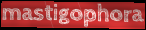
mastigophora